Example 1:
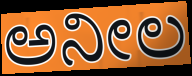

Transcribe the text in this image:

ಅನೀಲ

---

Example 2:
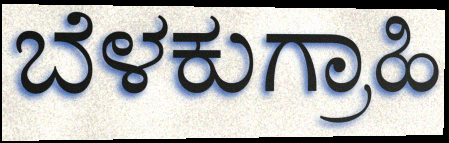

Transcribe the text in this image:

ಬೆಳಕುಗ್ರಾಹಿ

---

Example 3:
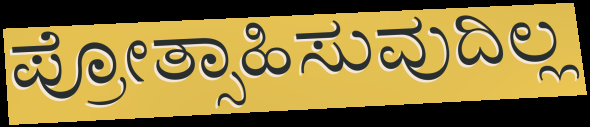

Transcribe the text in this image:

ಪ್ರೋತ್ಸಾಹಿಸುವುದಿಲ್ಲ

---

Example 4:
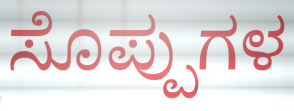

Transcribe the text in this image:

ಸೊಪ್ಪುಗಳ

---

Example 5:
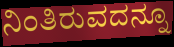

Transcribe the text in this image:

ನಿಂತಿರುವದನ್ನೂ